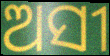
ଅସୀ